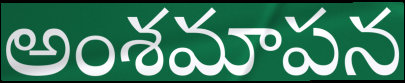
అంశమాపన